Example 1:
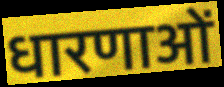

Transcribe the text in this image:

धारणाओं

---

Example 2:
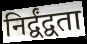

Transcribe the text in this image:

निर्द्वंद्वता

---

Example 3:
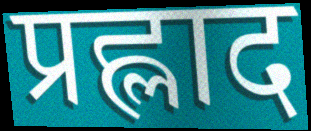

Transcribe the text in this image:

प्रह्लाद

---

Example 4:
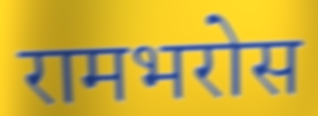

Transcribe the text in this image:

रामभरोस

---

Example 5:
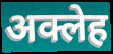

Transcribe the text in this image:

अक्लेह